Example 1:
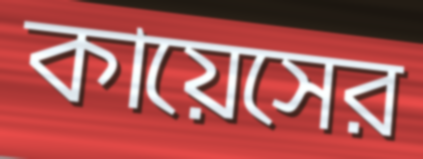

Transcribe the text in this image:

কায়েসের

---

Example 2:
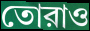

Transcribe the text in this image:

তোরাও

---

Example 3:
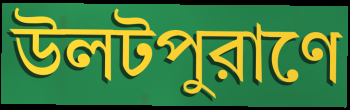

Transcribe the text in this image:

উলটপুরাণে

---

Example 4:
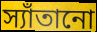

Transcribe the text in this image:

স্যাঁতানো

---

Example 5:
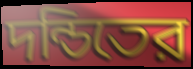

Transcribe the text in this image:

দন্ডিতের